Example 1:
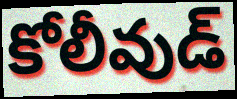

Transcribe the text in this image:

కోలీవుడ్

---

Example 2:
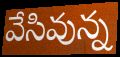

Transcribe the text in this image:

వేసివున్న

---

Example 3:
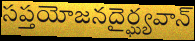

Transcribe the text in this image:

సప్తయోజనదైర్ఘ్యవాన్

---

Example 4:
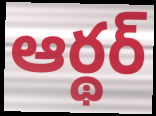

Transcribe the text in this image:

ఆర్థర్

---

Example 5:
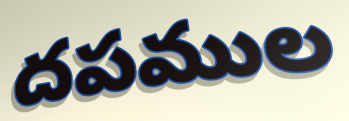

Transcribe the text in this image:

దపముల